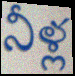
నీళ్ల